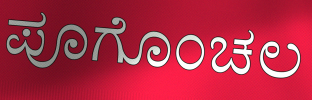
ಪೂಗೊಂಚಲ